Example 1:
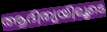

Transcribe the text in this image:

ആദിത്യയിലൂടെ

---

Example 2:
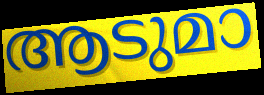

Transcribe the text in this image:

ആടുമാ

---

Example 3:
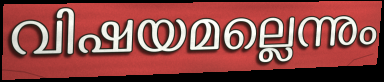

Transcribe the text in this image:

വിഷയമല്ലെന്നും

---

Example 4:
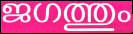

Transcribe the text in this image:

ജഗത്തും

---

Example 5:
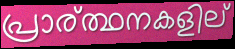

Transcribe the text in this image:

പ്രാര്ത്ഥനകളില്